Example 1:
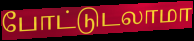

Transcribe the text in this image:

போட்டுடலாமா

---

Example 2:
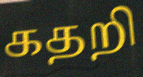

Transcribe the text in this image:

கதறி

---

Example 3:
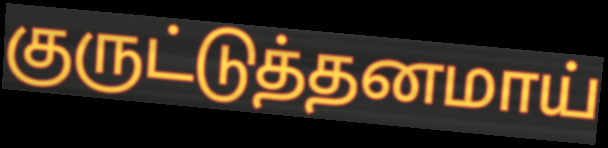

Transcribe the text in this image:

குருட்டுத்தனமாய்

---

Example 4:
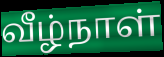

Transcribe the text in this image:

வீழ்நாள்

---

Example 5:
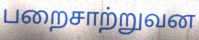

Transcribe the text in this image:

பறைசாற்றுவன